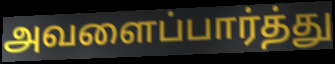
அவளைப்பார்த்து